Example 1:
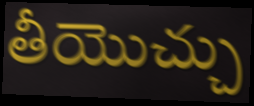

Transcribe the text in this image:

తీయొచ్చు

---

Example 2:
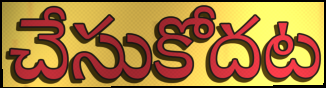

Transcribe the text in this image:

చేసుకోదట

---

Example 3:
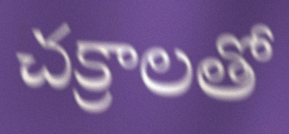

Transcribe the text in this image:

చక్రాలతో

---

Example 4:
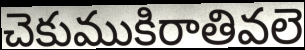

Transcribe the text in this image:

చెకుముకిరాతివలె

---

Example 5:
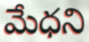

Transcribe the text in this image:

మేధని